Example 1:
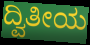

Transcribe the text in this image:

ದ್ವಿತೀಯ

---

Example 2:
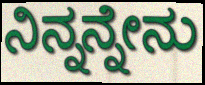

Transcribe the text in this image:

ನಿನ್ನನ್ನೇನು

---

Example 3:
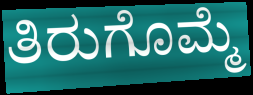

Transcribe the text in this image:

ತಿರುಗೊಮ್ಮೆ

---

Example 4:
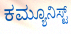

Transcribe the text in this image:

ಕಮ್ಯೂನಿಸ್ಟ್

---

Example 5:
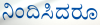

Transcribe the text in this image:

ನಿಂದಿಸಿದರೂ